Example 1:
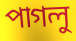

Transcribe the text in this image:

পাগলু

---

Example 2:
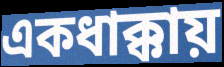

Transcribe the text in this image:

একধাক্কায়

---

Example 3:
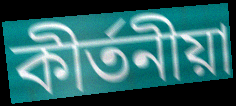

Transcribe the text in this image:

কীর্তনীয়া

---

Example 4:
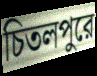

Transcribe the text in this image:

চিতলপুরে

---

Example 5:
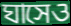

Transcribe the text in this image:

ঘাসেও